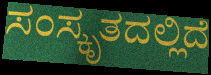
ಸಂಸ್ಕೃತದಲ್ಲಿದೆ